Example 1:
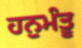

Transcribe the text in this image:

ਹਨੁਮੰਤੂ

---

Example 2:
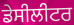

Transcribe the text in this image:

ਡੇਸੀਲੀਟਰ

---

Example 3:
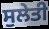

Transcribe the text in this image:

ਸੁਲੇਤੀ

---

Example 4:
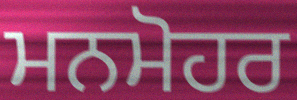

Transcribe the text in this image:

ਮਨਮੋਹਰ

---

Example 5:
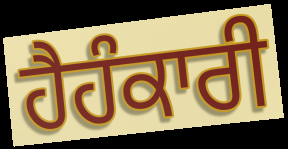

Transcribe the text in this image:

ਹੈਹੰਕਾਰੀ